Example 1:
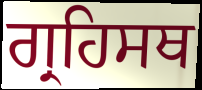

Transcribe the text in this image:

ਗ੍ਰਹਿਸਥ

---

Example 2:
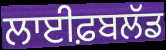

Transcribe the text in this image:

ਲਾਈਫ਼ਬਲੱਡ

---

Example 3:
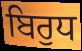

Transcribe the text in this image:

ਬਿਰੁਧ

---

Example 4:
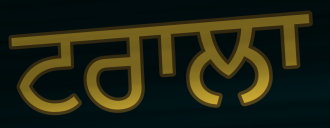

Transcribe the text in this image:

ਟਰਾਲਾ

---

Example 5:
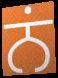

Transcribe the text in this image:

ਨਂ